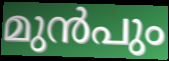
മുൻപും